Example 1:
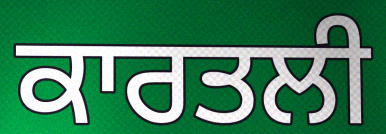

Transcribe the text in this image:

ਕਾਰਤਲੀ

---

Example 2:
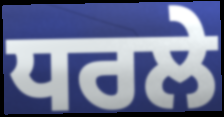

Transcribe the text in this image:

ਧਰਲੇ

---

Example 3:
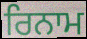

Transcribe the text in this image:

ਰਿਨਾਮ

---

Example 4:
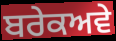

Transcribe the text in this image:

ਬਰੇਕਅਵੇ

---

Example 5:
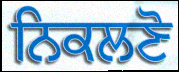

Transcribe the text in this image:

ਨਿਕਲਣੋ